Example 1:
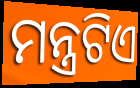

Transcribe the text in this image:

ମନ୍ତ୍ରଟିଏ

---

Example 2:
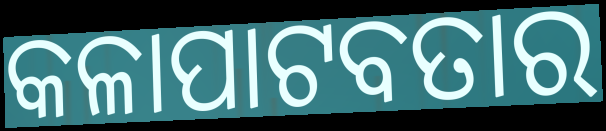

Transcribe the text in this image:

କଳାପାଟବତାର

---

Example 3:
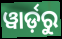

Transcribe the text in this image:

ୱାର୍ଡ଼ରୁ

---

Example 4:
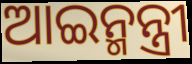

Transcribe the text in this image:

ଆଇନ୍ମନ୍ତ୍ରୀ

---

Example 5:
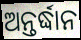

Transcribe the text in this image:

ଅନ୍ତର୍ଦ୍ଧାନ